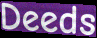
Deeds